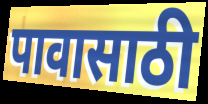
पावासाठी